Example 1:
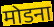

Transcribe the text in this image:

मोडना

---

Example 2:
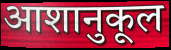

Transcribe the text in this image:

आशानुकूल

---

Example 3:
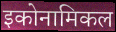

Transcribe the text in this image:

इकोनामिकल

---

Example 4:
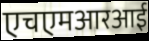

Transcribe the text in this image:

एचएमआरआई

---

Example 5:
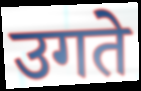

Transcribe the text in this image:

उगते